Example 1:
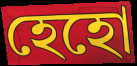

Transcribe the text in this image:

হেহো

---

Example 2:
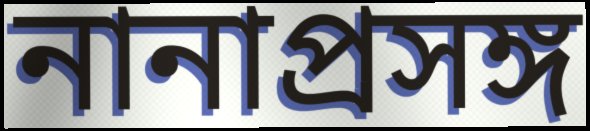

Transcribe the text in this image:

নানাপ্রসঙ্গ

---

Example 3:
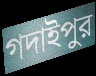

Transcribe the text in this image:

গদাইপুর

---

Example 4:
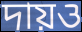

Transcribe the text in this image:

দায়ও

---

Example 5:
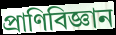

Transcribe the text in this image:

প্রাণিবিজ্ঞান